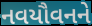
નવયૌવનને